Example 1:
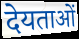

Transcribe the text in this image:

देयताओं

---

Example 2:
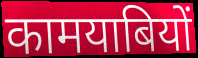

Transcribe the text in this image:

कामयाबियों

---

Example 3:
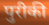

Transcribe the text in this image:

पुरीकी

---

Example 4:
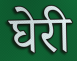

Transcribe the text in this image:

घेरी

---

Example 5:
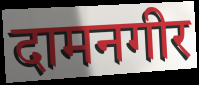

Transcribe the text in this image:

दामनगीर